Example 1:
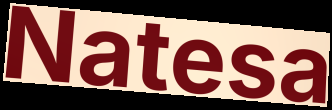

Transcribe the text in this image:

Natesa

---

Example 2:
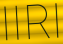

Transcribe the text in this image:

IIRI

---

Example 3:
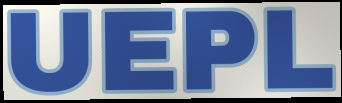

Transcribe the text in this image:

UEPL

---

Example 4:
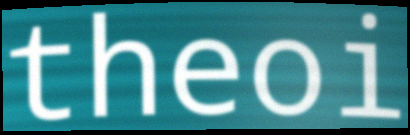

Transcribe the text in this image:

theoi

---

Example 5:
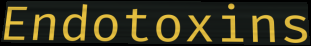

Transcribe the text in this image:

Endotoxins